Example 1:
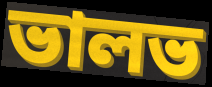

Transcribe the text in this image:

ভালভ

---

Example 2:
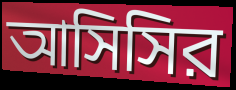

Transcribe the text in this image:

আসিসির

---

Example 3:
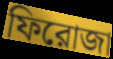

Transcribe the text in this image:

ফিরোজা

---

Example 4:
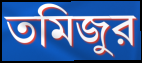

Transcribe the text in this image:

তমিজুর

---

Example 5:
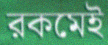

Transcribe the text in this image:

রকমেই